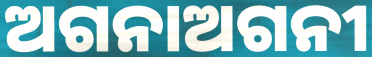
ଅଗନାଅଗନୀ